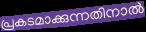
പ്രകടമാക്കുന്നതിനാൽ